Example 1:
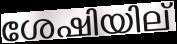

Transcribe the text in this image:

ശേഷിയില്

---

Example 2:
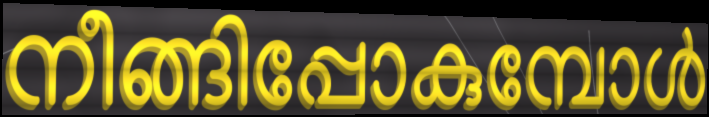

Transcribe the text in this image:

നീങ്ങിപ്പോകുമ്പോൾ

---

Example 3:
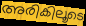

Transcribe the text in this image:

അരികിലൂടെ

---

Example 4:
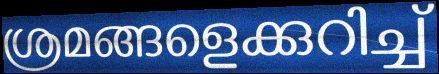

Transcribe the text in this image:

ശ്രമങ്ങളെക്കുറിച്ച്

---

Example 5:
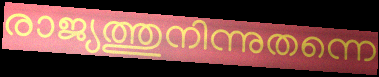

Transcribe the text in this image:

രാജ്യത്തുനിന്നുതന്നെ